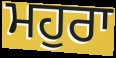
ਮਹੁਰਾ